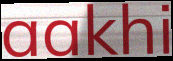
aakhi